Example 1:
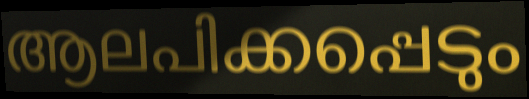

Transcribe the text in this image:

ആലപിക്കപ്പെടും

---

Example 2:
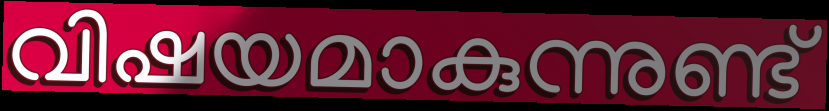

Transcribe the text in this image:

വിഷയമാകുന്നുണ്ട്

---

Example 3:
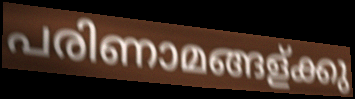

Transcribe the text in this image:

പരിണാമങ്ങള്ക്കു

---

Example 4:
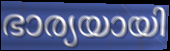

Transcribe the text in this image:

ഭാര്യയായി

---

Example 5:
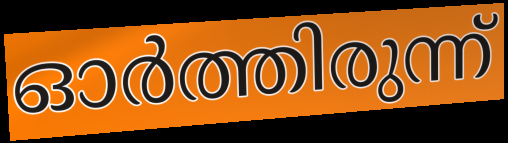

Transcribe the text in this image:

ഓർത്തിരുന്ന്